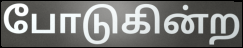
போடுகின்ற